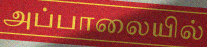
அப்பாலையில்